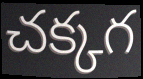
చక్కగ